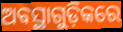
ଅବସ୍ଥାଗୁଡ଼ିକରେ